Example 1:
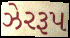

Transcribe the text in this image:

ઝેરરૂપ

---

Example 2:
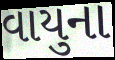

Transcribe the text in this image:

વાયુના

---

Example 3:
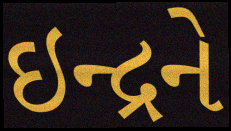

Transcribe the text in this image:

ઇન્દ્રને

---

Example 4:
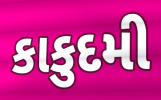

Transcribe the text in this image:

કાકુદમી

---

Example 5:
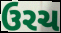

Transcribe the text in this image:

ઉરચ